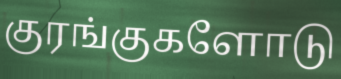
குரங்குகளோடு